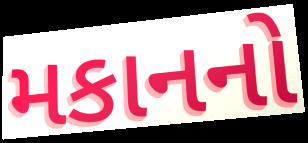
મકાનનો